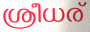
ശ്രീധര്